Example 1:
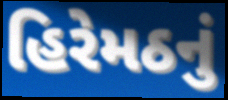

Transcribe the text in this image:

હિરેમઠનું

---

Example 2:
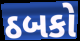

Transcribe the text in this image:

ઠબકો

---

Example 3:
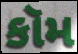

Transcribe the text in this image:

કૉમ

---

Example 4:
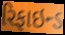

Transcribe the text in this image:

રિફાઇન્ડ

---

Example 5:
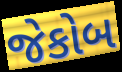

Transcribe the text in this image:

જેકોબ